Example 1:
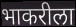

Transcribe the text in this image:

भाकरीला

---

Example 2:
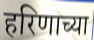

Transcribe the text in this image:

हरिणाच्या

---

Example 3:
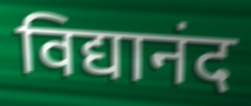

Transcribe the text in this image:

विद्यानंद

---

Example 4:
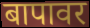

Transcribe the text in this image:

बापावर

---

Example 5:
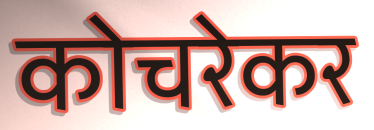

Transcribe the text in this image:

कोचरेकर